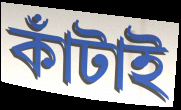
কাঁটাই